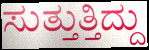
ಸುತ್ತುತ್ತಿದ್ದು